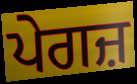
ਪੇਗਜ਼